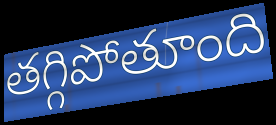
తగ్గిపోతూంది